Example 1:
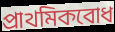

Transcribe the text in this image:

প্রাথমিকবোধ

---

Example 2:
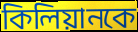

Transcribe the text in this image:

কিলিয়ানকে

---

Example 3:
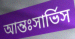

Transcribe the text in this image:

আন্তঃসার্ভিস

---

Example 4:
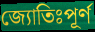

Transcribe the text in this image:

জ্যোতিঃপূর্ণ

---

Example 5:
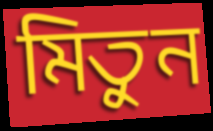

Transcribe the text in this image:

মিতুন